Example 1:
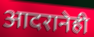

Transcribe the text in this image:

आदरानेही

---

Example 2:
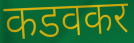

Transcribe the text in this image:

कडवकर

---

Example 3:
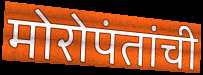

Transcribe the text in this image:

मोरोपंतांची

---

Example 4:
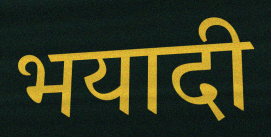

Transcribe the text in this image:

भयादी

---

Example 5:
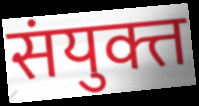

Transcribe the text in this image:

संयुक्त